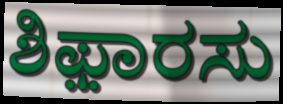
ಶಿಫ಼ಾರಸು